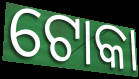
ଟୋକା